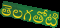
తెలగతోటి